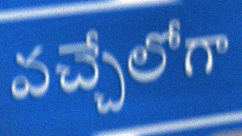
వచ్చేలోగా